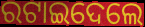
ରଟାଇଦେଲେ